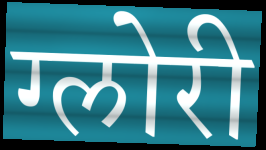
ग्लोरी